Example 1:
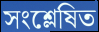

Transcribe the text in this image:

সংশ্লেষিত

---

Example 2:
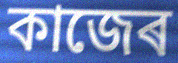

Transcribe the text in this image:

কাজেৰ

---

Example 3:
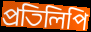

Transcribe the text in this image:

প্ৰতিলিপি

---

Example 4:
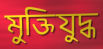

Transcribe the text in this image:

মুক্তিযুদ্ধ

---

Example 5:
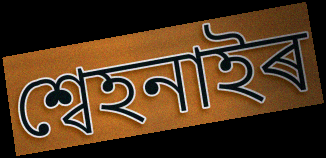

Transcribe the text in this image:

শ্বেহনাইৰ